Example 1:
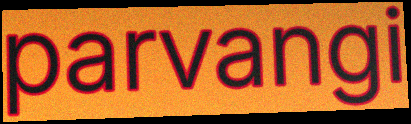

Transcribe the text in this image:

parvangi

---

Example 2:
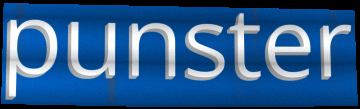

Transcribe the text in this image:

punster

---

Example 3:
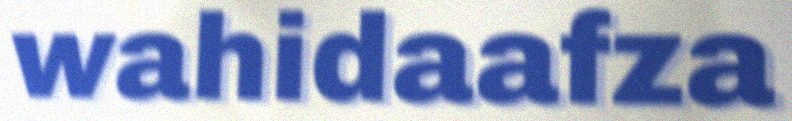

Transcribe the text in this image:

wahidaafza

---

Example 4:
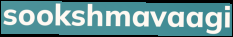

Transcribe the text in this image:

sookshmavaagi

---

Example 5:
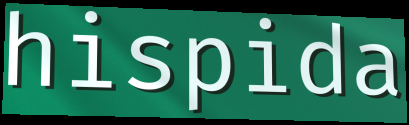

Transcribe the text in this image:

hispida